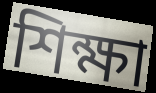
শিক্ষা